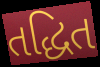
તદ્ધિત